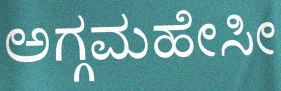
ಅಗ್ಗಮಹೇಸೀ